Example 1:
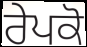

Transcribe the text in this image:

ਰੇਪਕੋ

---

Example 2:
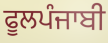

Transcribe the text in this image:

ਫੂਲਪੰਜਾਬੀ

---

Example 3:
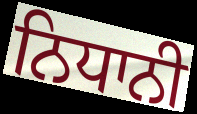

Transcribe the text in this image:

ਨਿਧਾਨੀ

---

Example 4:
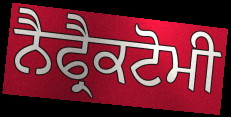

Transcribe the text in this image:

ਨੈਫ੍ਰੈਕਟੋਮੀ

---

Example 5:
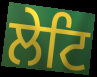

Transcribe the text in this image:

ਲੇਟਿ